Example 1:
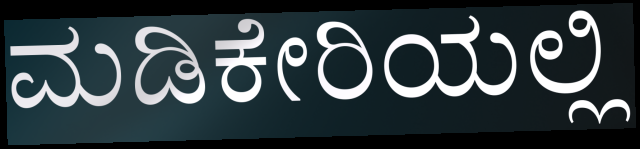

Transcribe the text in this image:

ಮಡಿಕೇರಿಯಲ್ಲಿ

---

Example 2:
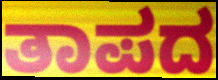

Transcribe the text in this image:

ತಾಪದ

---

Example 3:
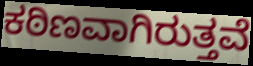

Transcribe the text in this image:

ಕಠಿಣವಾಗಿರುತ್ತವೆ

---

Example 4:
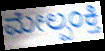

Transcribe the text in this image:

ಮೇಲ್ಪಂಕ್ತಿ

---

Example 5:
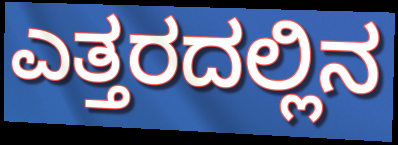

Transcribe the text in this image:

ಎತ್ತರದಲ್ಲಿನ